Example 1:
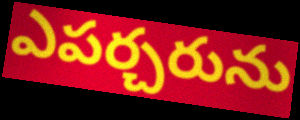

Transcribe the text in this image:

ఎపర్చరును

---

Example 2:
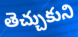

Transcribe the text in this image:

తెచ్చుకుని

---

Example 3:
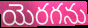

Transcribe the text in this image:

యెరగను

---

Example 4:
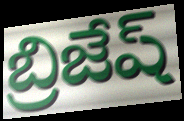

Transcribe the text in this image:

బ్రిజేష్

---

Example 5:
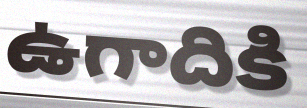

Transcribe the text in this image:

ఉగాదికి